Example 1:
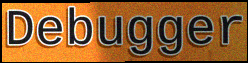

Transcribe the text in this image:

Debugger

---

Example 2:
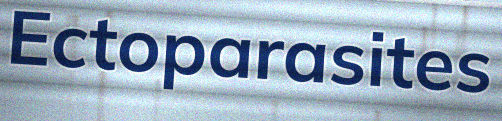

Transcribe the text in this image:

Ectoparasites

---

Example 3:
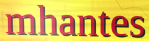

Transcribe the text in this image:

mhantes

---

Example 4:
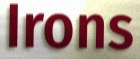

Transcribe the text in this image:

Irons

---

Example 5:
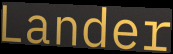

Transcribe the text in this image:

Lander